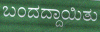
ಬಂದದ್ದಾಯಿತು